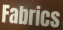
Fabrics